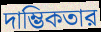
দাম্ভিকতার